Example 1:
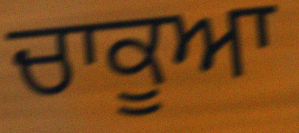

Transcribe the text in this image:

ਚਾਕੂਆ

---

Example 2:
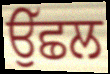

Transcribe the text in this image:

ਉੱਛਲ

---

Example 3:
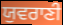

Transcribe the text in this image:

ਯੁਵਰਾਣੀ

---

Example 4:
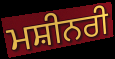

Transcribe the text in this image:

ਮਸ਼ੀਨਰੀ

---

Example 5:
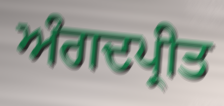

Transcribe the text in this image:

ਅੰਗਦਪ੍ਰੀਤ